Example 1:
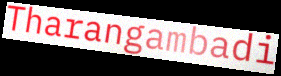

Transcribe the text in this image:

Tharangambadi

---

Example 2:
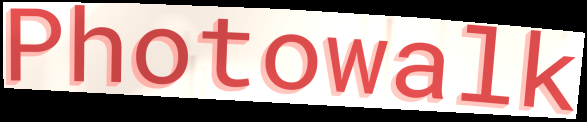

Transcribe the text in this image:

Photowalk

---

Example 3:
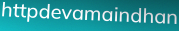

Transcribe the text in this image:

httpdevamaindhan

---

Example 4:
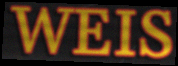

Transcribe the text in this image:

WEIS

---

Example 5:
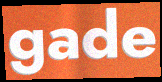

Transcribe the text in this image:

gade